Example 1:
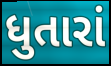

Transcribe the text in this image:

ધુતારાં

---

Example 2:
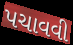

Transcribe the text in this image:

પચાવવી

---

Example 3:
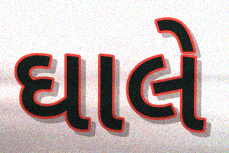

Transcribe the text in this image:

ઘાલે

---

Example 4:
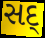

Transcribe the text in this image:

સદ્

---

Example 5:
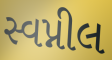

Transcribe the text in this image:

સ્વપ્નીલ